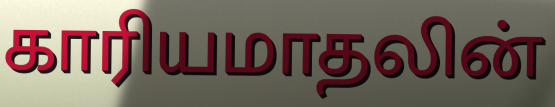
காரியமாதலின்